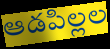
ఆడపిల్లల